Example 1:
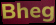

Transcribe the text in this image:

Bheg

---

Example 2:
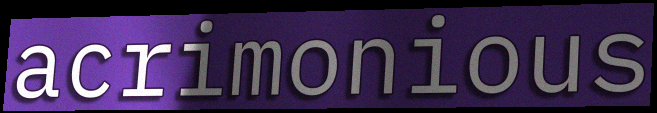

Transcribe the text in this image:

acrimonious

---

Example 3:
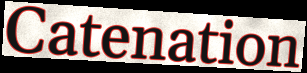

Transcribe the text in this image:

Catenation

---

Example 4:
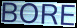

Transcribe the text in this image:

BORE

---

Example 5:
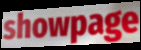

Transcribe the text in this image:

showpage